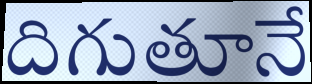
దిగుతూనే